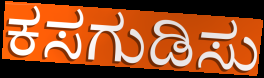
ಕಸಗುಡಿಸು